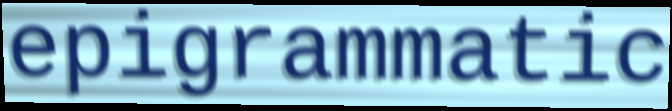
epigrammatic